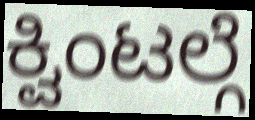
ಕ್ವಿಂಟಲ್ಗೆ